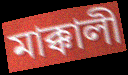
মাক্কালী